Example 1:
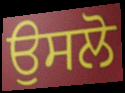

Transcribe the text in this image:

ਉਸਲੋ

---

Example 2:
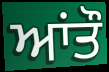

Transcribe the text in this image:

ਆਂਤੌ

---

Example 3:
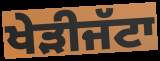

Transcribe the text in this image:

ਖੇੜੀਜੱਟਾ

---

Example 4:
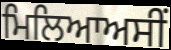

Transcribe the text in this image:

ਮਿਲਿਆਅਸੀਂ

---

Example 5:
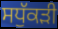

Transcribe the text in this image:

ਸਧੁੱਕੜੀ